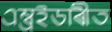
এম্ব্ৰইডাৰীত